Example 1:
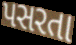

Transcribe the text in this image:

પસરતા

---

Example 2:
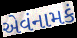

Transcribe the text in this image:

એવંનામકં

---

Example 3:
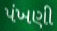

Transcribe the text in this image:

પંખણી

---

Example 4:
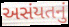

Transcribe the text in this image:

અસંયતનું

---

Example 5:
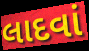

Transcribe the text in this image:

લાદવાં